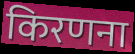
किरणना